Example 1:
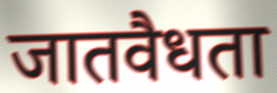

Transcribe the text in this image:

जातवैधता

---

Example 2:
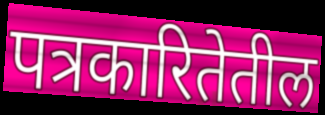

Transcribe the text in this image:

पत्रकारितेतील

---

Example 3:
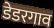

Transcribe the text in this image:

डेडरगाव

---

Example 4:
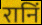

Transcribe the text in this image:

रानिं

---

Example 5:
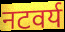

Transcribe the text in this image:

नटवर्य